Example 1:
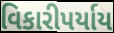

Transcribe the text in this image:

વિકારીપર્યાય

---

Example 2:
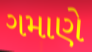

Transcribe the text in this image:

ગમાણે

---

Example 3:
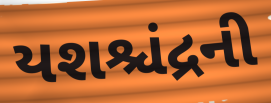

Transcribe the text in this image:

યશશ્ચંદ્રની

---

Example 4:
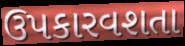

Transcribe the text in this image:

ઉપકારવશતા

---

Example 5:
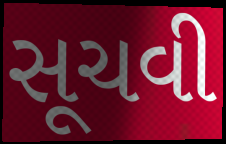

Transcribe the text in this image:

સૂચવી